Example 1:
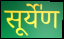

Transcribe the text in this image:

सूर्ये॑ण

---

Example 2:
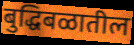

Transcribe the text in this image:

बुद्धिबळातील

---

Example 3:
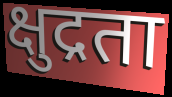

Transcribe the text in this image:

क्षुद्रता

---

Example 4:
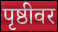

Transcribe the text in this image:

पृष्ठीवर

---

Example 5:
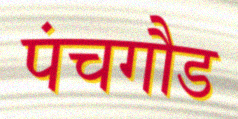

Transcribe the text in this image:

पंचगौड